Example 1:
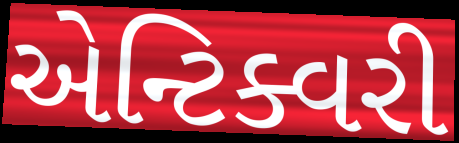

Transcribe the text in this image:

એન્ટિક્વરી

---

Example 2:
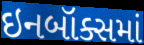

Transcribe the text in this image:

ઇનબૉક્સમાં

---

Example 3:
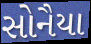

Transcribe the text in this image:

સોનૈયા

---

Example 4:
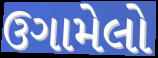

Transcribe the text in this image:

ઉગામેલો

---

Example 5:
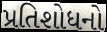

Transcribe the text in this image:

પ્રતિશોધનો